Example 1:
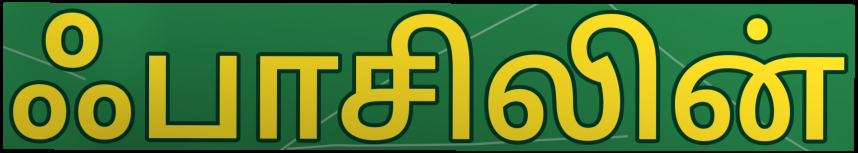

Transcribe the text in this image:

ஃபாசிலின்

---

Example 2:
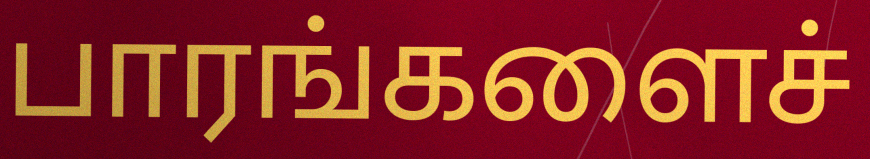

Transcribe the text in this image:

பாரங்களைச்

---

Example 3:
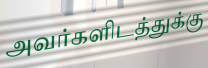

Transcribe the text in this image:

அவர்களிடத்துக்கு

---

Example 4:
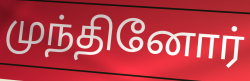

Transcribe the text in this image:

முந்தினோர்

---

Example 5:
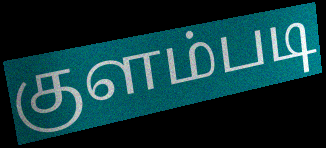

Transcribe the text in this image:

குளம்படி